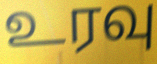
உரவு